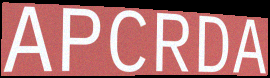
APCRDA